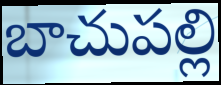
బాచుపల్లి